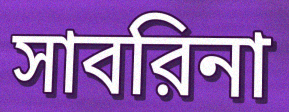
সাবরিনা